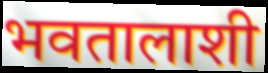
भवतालाशी